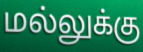
மல்லுக்கு